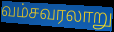
வம்சவரலாறு